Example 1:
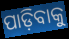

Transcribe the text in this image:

ପାଡ଼ିବାକୁ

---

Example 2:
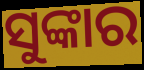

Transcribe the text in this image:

ସୁଙ୍କାର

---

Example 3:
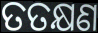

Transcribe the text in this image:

ତତକ୍ଷଣ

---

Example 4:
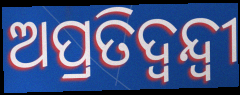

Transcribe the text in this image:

ଅପ୍ରତିଦ୍ବନ୍ଦ୍ବୀ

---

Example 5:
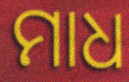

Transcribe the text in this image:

ମାଧ